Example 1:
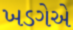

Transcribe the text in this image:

ખડગેએ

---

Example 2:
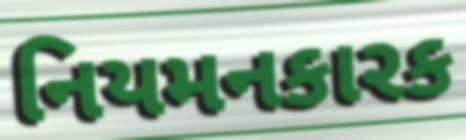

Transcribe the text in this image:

નિયમનકારક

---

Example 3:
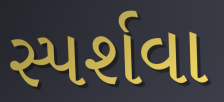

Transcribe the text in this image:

સ્પર્શવા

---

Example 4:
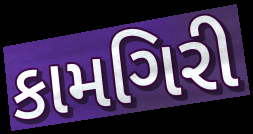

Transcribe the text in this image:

કામગિરી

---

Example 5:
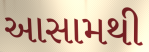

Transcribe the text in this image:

આસામથી